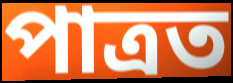
পাত্ৰত